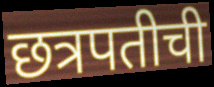
छत्रपतीची